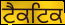
ਟੈਕਟਿਕ